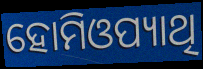
ହୋମିଓପ୍ୟାଥି